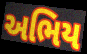
અભિય